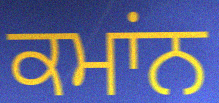
ਕਮਾਂਨ